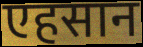
एहसान